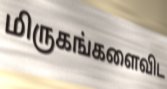
மிருகங்களைவிட